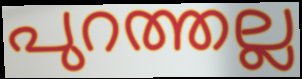
പുറത്തല്ല